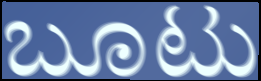
ಬೂಟು